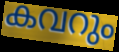
കവറും